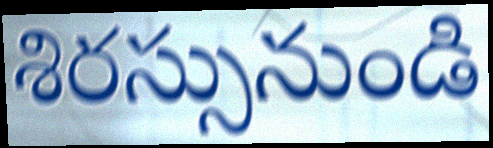
శిరస్సునుండి